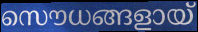
സൌധങ്ങളായ്